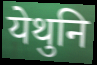
येथुनि